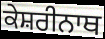
ਕੇਸ਼ਰੀਨਾਥ